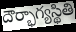
దౌర్భాగ్యస్థితి